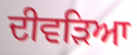
ਦੀਵੜਿਆ